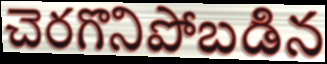
చెరగొనిపోబడిన